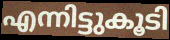
എന്നിട്ടുകൂടി